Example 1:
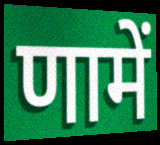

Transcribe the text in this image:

णामें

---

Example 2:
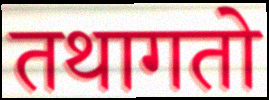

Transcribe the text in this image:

तथागतो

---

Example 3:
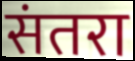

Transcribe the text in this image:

संतरा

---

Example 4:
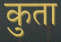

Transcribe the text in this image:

कुता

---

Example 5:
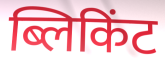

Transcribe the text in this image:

ब्लिकिंट